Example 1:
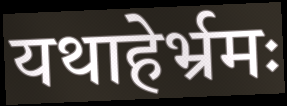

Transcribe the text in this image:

यथाहेर्भ्रमः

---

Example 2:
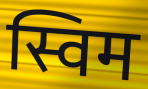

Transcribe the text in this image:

स्विम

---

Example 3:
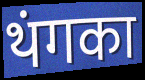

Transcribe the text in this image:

थंगका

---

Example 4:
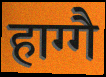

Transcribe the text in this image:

हाग्गै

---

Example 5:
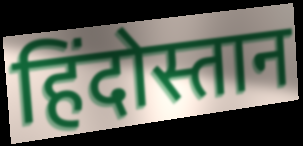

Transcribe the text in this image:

हिंदोस्तान